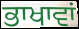
ਭਾਖਾਵਾਂ